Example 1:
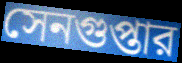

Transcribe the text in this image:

সেনগুপ্তার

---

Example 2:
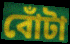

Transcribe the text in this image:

বোঁটা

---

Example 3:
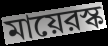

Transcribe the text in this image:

মায়েরস্ক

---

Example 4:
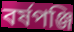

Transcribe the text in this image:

বর্ষপঞ্জি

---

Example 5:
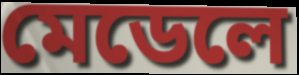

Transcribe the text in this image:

মেডেলে